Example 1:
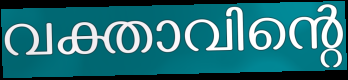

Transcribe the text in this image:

വക്താവിന്റെ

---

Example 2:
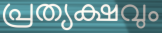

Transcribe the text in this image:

പ്രത്യക്ഷവും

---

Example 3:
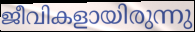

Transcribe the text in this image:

ജീവികളായിരുന്നു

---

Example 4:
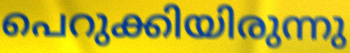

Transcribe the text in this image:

പെറുക്കിയിരുന്നു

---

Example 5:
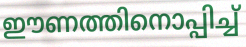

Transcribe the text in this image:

ഈണത്തിനൊപ്പിച്ച്